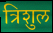
त्रिशुल